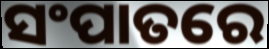
ସଂପାତରେ